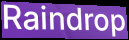
Raindrop